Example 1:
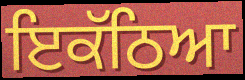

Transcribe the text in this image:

ਇਕੱਠਿਆ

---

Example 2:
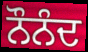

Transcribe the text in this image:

ਨੌਨੰਦ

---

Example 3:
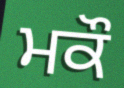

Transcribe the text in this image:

ਮਕੌ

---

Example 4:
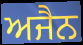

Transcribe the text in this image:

ਅਜੈਨ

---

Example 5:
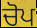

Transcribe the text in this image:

ਚੋਪ